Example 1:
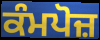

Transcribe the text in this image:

ਕੰਮਪੋਜ਼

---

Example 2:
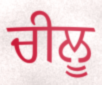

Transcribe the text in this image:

ਚੀਲੂ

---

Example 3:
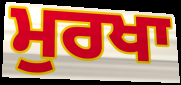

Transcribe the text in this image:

ਮੁਰਖਾ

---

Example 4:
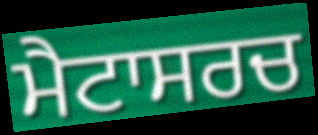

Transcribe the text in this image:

ਮੈਟਾਸਰਚ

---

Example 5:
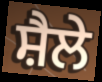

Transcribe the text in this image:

ਸ਼ੈਲੇ